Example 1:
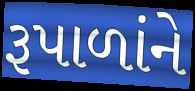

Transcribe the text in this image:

રૂપાળાંને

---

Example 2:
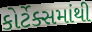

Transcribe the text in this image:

કોર્ટેક્સમાંથી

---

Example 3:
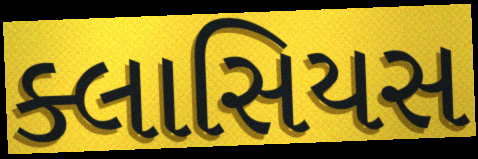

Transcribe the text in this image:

ક્લાસિયસ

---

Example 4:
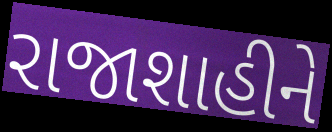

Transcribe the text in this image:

રાજાશાહીને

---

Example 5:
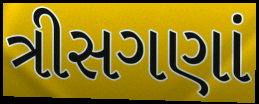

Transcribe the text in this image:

ત્રીસગણાં